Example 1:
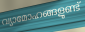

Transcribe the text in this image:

വ്യാമോഹങ്ങളുണ്ട്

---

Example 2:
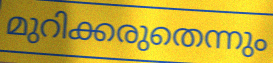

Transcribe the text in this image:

മുറിക്കരുതെന്നും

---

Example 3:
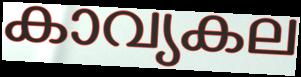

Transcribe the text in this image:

കാവ്യകല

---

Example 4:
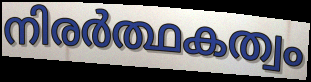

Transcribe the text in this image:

നിരർത്ഥകത്വം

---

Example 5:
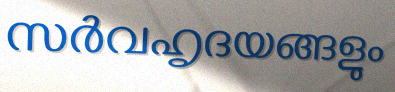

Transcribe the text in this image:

സർവഹൃദയങ്ങളും